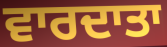
ਵਾਰਦਾਤਾ